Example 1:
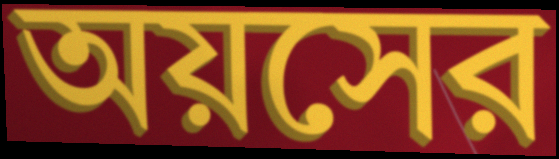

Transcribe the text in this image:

অয়সের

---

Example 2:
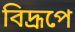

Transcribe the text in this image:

বিদ্রূপে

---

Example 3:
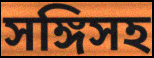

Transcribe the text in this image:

সঙ্গিসহ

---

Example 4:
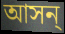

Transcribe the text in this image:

আসন্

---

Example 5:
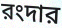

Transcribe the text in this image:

রংদার